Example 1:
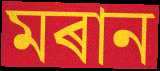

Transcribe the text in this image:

মৰান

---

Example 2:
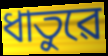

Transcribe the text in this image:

ধাতুৱে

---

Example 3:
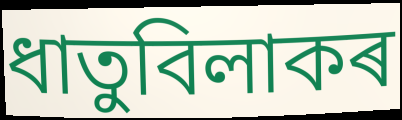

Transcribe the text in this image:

ধাতুবিলাকৰ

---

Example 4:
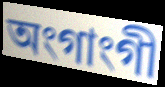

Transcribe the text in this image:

অংগাংগী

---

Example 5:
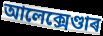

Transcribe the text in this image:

আলেক্সেণ্ডাৰ